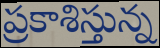
ప్రకాశిస్తున్న